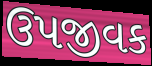
ઉપજીવક